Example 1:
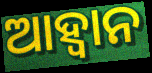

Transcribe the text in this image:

ଆହ୍ୱାନ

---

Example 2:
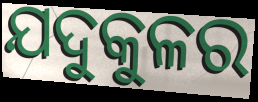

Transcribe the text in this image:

ଯଦୁକୁଳର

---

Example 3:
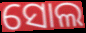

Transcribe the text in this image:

ସୋଲ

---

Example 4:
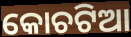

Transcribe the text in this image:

କୋଚଟିଆ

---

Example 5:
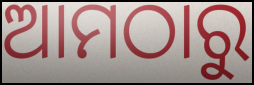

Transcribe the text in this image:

ଆମଠାରୁ